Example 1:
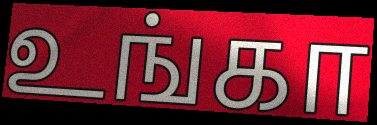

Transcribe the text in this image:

உங்கா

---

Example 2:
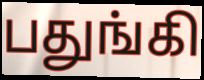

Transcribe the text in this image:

பதுங்கி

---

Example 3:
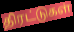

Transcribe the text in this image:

திரட்டுகள்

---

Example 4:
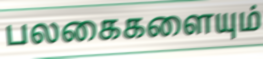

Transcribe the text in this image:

பலகைகளையும்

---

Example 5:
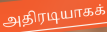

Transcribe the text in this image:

அதிரடியாகக்